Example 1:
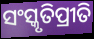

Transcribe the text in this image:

ସଂସ୍କୃତିପ୍ରୀତି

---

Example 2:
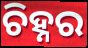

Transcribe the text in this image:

ଚିହ୍ନର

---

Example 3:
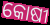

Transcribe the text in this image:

କୋଷୀ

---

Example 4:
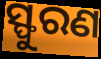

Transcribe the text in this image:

ସ୍ଫୁରଣ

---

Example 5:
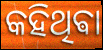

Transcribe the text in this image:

କହିଥିଵା